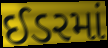
ઈડરમાં